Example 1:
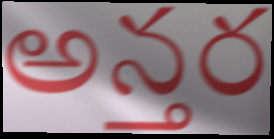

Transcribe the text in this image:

అన్తర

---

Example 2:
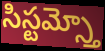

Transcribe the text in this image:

సిస్టమ్స్తో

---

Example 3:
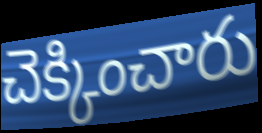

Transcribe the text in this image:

చెక్కించారు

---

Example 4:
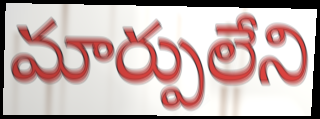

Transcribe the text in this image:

మార్పులేని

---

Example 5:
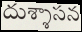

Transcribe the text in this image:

దుశ్శాసన